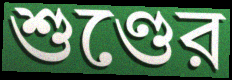
শুণ্ডের